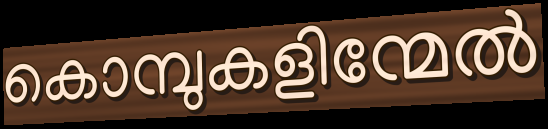
കൊമ്പുകളിന്മേൽ